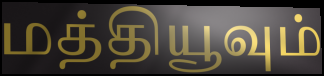
மத்தியூவும்